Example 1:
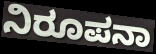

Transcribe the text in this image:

ನಿರೂಪನಾ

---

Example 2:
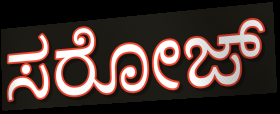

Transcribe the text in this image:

ಸರೋಜ್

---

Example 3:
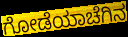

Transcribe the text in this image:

ಗೋಡೆಯಾಚೆಗಿನ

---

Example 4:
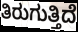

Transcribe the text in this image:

ತಿರುಗುತ್ತಿದೆ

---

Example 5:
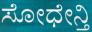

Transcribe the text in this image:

ಸೋಧೇನ್ತಿ